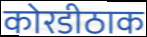
कोरडीठाक